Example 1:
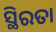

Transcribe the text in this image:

ସ୍ଥିରତା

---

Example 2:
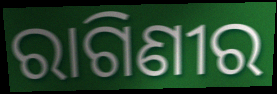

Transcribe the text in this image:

ରାଗିଣୀର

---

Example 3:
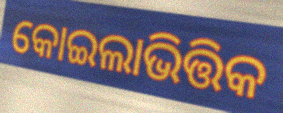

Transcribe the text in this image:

କୋଇଲାଭିତ୍ତିକ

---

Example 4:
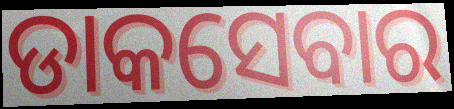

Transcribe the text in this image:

ଡାକସେବାର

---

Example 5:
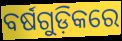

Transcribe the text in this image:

ବର୍ଷଗୁଡ଼ିକରେ